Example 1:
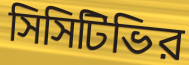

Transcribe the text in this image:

সিসিটিভির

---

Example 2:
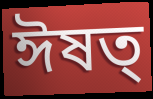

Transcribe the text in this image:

ঈষত্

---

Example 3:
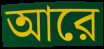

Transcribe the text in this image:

আরে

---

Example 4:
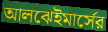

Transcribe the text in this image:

আলঝেইমার্সের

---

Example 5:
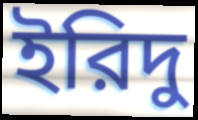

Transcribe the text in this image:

ইরিদু